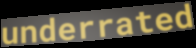
underrated